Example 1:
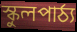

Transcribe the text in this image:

স্কুলপাঠ্য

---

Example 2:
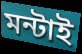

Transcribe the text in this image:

মন্টাই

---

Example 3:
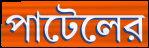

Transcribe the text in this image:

পাটেলের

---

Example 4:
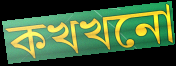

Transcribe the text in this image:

কখখনো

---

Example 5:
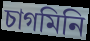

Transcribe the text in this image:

চাগমিনি